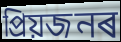
প্ৰিয়জনৰ